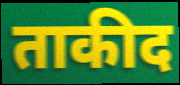
ताकीद